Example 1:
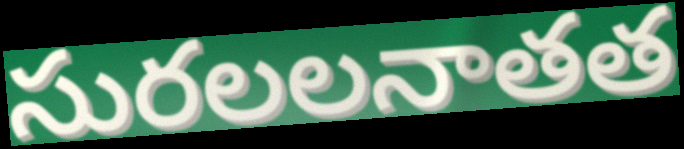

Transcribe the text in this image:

సురలలనాతత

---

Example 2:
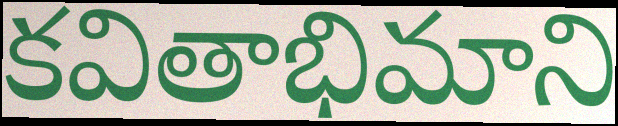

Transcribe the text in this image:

కవితాభిమాని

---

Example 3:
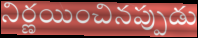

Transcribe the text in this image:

నిర్ణయించినప్పుడు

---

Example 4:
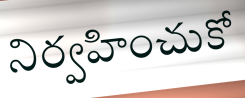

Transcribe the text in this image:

నిర్వహించుకో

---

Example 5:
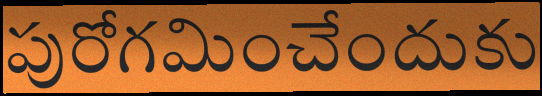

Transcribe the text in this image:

పురోగమించేందుకు